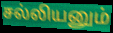
சல்லியனும்